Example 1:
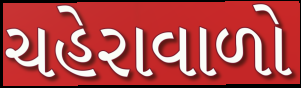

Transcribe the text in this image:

ચહેરાવાળો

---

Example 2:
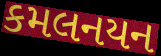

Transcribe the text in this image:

કમલનયન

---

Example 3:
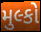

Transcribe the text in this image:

મુલ્કો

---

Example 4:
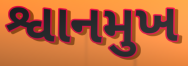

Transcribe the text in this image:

શ્વાનમુખ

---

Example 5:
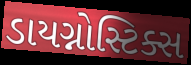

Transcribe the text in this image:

ડાયગ્નોસ્ટિક્સ